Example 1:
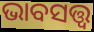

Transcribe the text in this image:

ଭାବସତ୍ତ୍ୱ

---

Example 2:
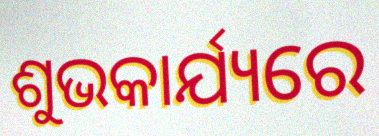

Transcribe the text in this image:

ଶୁଭକାର୍ଯ୍ୟରେ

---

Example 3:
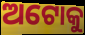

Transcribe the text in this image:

ଅଟୋକୁ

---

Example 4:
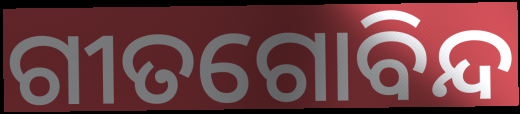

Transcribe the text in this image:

ଗୀତଗୋବିନ୍ଦ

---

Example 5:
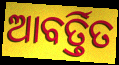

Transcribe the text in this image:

ଆବର୍ତ୍ତିତ